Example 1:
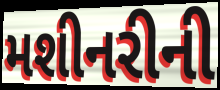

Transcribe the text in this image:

મશીનરીની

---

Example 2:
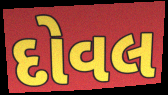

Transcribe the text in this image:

દોવલ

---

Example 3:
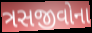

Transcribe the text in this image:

ત્રસજીવોના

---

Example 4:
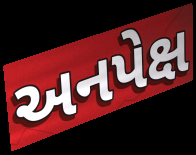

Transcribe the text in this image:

અનપેક્ષ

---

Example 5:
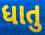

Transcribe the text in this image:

ધાતુ